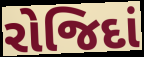
રોજિદાં